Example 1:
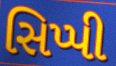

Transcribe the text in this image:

સિપ્પી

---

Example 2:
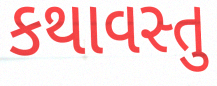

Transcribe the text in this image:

કથાવસ્તુ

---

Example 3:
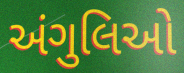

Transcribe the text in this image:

અંગુલિઓ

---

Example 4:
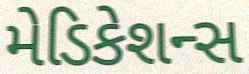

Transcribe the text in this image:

મેડિકેશન્સ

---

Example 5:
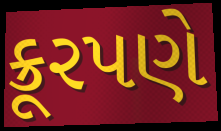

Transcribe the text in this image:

ક્રૂરપણે